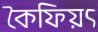
কৈফিয়ৎ